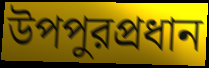
উপপুরপ্রধান